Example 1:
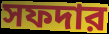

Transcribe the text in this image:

সফদার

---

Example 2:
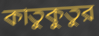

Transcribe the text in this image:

কাতুকুতুর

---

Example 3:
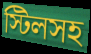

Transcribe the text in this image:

স্টিলসহ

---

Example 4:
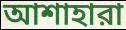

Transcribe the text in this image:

আশাহারা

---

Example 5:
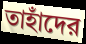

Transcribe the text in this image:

তাহাঁদের